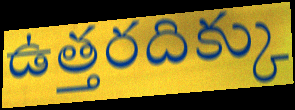
ఉత్తరదిక్కు